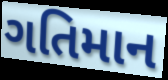
ગતિમાન